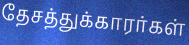
தேசத்துக்காரர்கள்